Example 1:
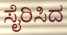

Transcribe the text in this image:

ಸೈರಿಸಿದ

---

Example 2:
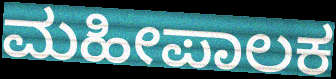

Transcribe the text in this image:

ಮಹೀಪಾಲಕ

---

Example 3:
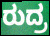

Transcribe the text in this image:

ರುದ್ರ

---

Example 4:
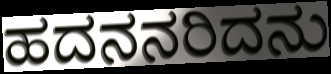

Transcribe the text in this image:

ಹದನನರಿದನು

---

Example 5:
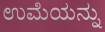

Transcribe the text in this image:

ಉಮೆಯನ್ನು